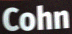
Cohn